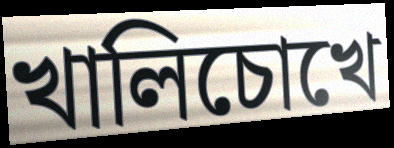
খালিচোখে